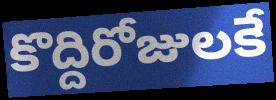
కొద్దిరోజులకే